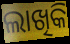
ଲାଖିକି